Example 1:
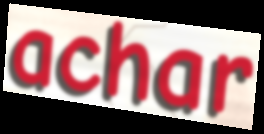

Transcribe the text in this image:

achar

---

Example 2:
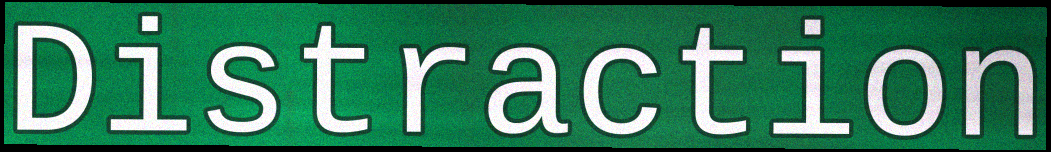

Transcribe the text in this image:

Distraction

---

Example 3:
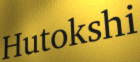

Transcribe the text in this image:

Hutokshi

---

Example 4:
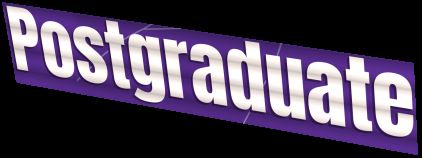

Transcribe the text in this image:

Postgraduate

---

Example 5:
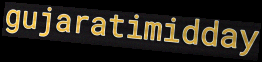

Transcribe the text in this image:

gujaratimidday